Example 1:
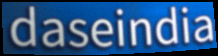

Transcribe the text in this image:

daseindia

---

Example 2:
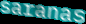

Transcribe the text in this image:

saranas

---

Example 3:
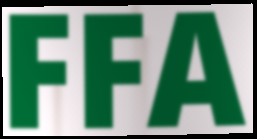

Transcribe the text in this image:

FFA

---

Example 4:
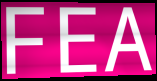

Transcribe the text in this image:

FEA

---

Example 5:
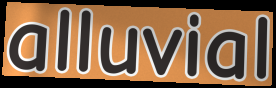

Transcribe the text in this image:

alluvial